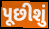
પૂછીશું